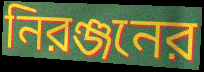
নিরঞ্জনের